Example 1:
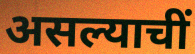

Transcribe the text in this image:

असल्याचीं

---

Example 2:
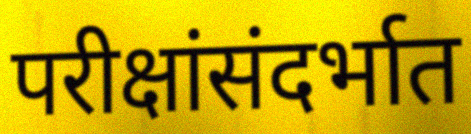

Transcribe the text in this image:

परीक्षांसंदर्भात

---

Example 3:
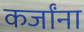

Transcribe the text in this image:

कर्जांना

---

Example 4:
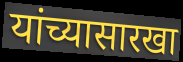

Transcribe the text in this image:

यांच्यासारखा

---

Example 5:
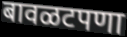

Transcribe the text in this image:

बावळटपणा